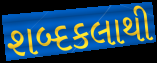
શબ્દકલાથી